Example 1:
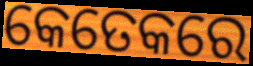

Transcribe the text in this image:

କେତେକରେ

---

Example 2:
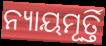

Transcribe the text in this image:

ନ୍ୟାୟମୂର୍ତ୍ତି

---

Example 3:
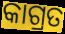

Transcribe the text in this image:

କାଗ୍ରତ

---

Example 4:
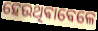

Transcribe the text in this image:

ହେଉଥିଵାବେଳେ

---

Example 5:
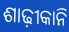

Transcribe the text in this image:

ଶାଢ଼ୀକାନି